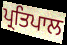
ਪ੍ਰਤਿਪਾਲ